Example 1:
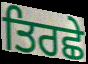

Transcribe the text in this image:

ਤਿਰਛੇ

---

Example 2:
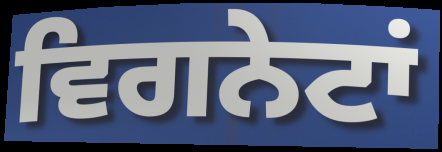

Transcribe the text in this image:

ਵਿਗਨੇਟਾਂ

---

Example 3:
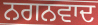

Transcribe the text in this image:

ਨਗਨਵਾਦ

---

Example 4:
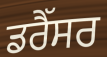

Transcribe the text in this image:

ਡਰੈੱਸਰ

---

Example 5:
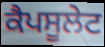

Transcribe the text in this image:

ਕੈਪਸੂਲੇਟ